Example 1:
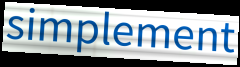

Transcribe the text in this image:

simplement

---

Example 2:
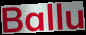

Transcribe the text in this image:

Ballu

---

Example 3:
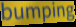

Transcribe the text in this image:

bumping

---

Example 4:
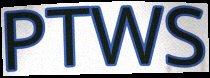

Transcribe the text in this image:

PTWS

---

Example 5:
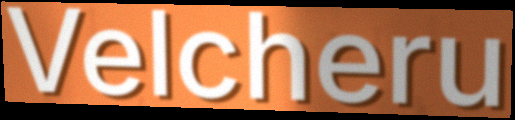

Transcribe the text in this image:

Velcheru